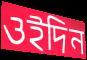
ওইদিন